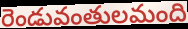
రెండువంతులమంది